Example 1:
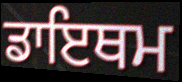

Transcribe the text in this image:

ਡਾਇਥਮ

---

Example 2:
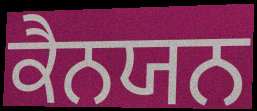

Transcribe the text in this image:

ਕੈਨਯਨ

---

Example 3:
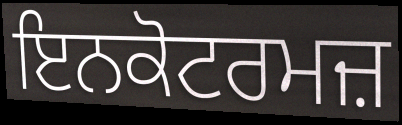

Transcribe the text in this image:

ਇਨਕੋਟਰਮਜ਼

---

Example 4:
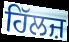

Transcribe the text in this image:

ਹਿੱਲਜ਼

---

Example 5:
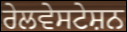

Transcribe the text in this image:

ਰੇਲਵੇਸਟੇਸ਼ਨ